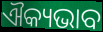
ଐକ୍ୟଭାବ